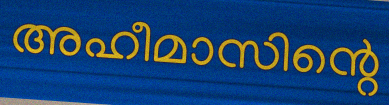
അഹീമാസിന്റെ